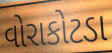
વોરાકોટડા